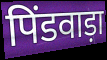
पिंडवाड़ा